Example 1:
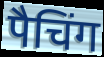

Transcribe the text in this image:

पैचिंग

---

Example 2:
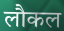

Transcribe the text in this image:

लौकल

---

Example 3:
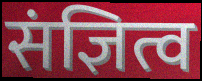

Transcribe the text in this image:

संज्ञित्व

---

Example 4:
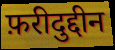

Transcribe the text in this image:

फ़रीदुद्दीन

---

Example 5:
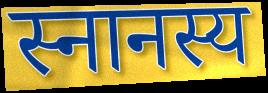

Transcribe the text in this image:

स्नानस्य